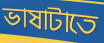
ভাষাটাতে